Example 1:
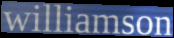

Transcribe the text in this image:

williamson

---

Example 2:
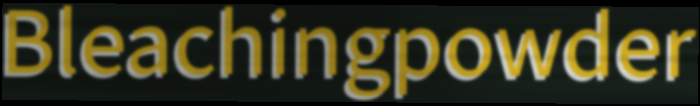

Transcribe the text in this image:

Bleachingpowder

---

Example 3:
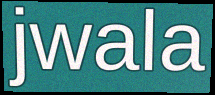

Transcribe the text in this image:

jwala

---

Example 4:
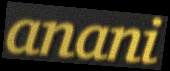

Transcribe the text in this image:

anani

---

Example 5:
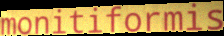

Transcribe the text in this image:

monitiformis